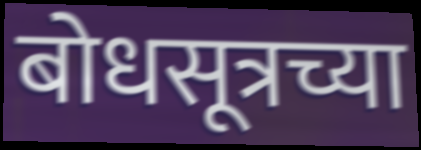
बोधसूत्रच्या